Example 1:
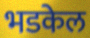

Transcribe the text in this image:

भडकेल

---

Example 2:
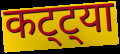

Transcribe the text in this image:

कट्ट्या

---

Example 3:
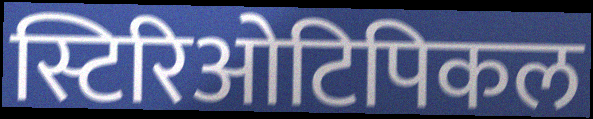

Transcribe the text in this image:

स्टिरिओटिपिकल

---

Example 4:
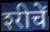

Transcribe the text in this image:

श्रीचें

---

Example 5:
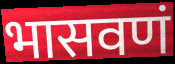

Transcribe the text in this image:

भासवणं